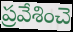
ప్రవేశించె